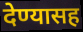
देण्यासह